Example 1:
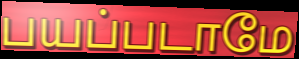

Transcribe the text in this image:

பயப்படாமே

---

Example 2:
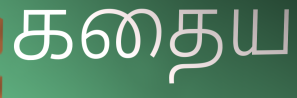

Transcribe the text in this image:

கதைய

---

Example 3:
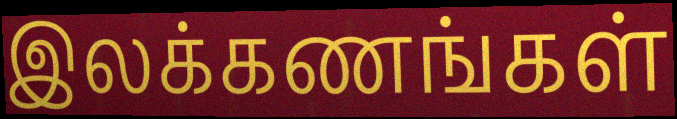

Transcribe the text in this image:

இலக்கணங்கள்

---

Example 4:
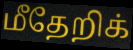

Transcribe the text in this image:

மீதேறிக்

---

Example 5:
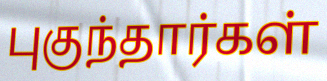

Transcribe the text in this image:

புகுந்தார்கள்